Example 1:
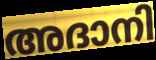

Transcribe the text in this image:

അദാനി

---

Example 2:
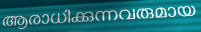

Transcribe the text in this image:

ആരാധിക്കുന്നവരുമായ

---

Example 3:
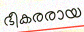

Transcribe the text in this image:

ഭീകരരായ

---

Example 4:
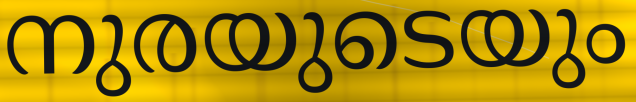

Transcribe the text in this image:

നുരയുടെയും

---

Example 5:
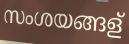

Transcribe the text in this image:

സംശയങ്ങള്